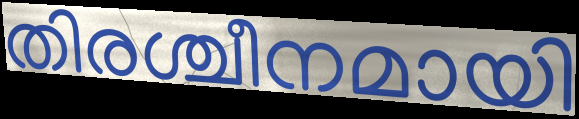
തിരശ്ചീനമായി